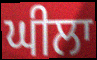
ਘੀਲਾ